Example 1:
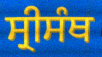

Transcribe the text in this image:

ਸ੍ਰੀਸੰਥ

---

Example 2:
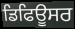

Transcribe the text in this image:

ਡਿਫਿਊਸਰ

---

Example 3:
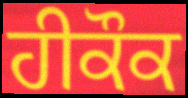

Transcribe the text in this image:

ਹੀਕੌਕ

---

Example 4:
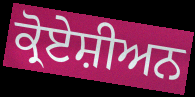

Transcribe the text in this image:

ਕ੍ਰੋਏਸ਼ੀਅਨ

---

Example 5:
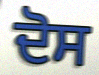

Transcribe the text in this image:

ਦੋਸ